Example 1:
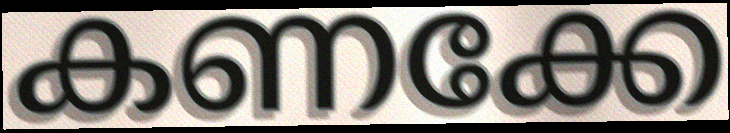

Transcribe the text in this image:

കണക്കേ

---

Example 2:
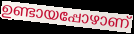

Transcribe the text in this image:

ഉണ്ടായപ്പോഴാണ്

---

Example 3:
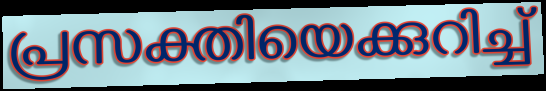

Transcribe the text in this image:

പ്രസക്തിയെക്കുറിച്ച്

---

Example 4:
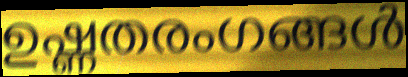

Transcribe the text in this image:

ഉഷ്ണതരംഗങ്ങൾ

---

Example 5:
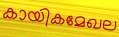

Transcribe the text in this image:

കായികമേഖല